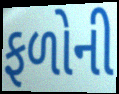
ફળોની